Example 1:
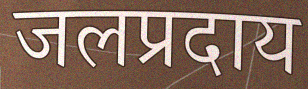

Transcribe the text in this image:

जलप्रदाय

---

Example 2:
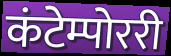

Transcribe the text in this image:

कंटेम्पोररी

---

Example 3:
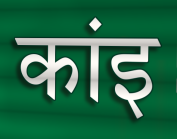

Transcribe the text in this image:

कांइ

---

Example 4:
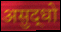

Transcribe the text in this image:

असुद्धो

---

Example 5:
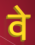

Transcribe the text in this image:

वे